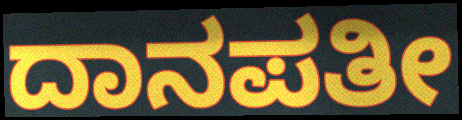
ದಾನಪತೀ